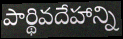
పార్థివదేహాన్ని